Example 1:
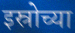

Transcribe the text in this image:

इस्रोच्या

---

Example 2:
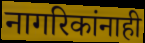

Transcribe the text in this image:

नागरिकांनाही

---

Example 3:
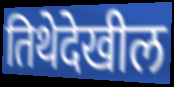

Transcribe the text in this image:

तिथेदेखील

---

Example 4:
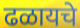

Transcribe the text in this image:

ढळायचे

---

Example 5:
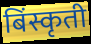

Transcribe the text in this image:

बिंस्कृती